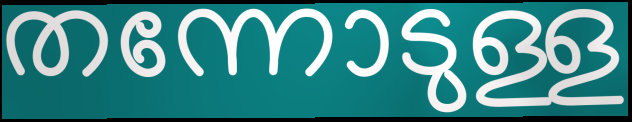
തന്നോടുള്ള